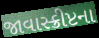
જાવાસ્ક્રીપ્ટના